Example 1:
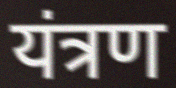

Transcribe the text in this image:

यंत्रण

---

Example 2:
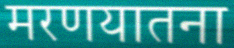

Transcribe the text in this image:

मरणयातना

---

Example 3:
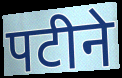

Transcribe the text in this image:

पटीने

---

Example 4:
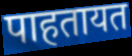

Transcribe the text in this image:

पाहतायत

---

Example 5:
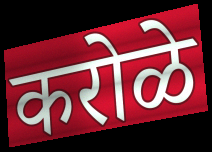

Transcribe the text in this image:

करोळे